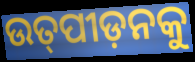
ଉତ୍‌ପୀଡ଼ନକୁ